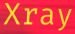
Xray